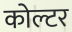
कोल्टर